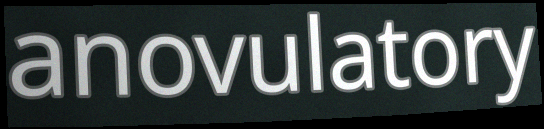
anovulatory